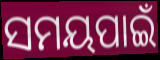
ସମୟପାଇଁ